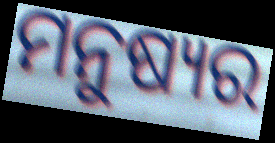
ମନୁଷ୍ୟର